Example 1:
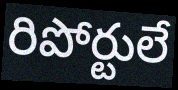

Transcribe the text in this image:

రిపోర్టులే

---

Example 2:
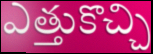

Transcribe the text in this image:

ఎత్తుకొచ్చి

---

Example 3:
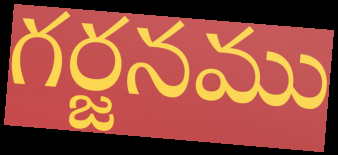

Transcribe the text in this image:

గర్జనము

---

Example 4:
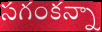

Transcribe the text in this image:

సగంకన్నా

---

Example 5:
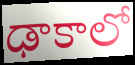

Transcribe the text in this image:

ఢాకాలో